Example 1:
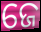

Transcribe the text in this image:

ଜେ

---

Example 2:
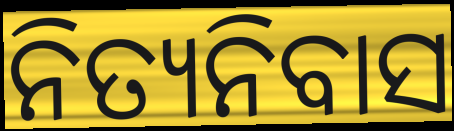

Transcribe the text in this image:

ନିତ୍ୟନିବାସ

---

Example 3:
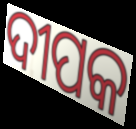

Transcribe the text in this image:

ଦୀପକ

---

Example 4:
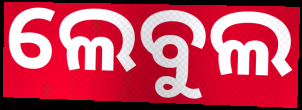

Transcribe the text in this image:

ଲେବୁଲ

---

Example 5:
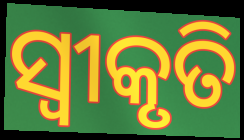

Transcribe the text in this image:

ସ୍ବୀକୃତି